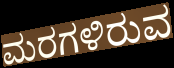
ಮರಗಳಿರುವ